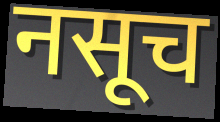
नसूच